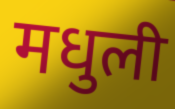
मधुली